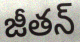
జీతన్